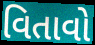
વિતાવો